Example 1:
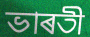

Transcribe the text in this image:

ভাৰতী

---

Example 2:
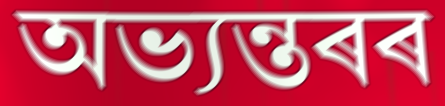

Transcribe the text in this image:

অভ্যন্তৰৰ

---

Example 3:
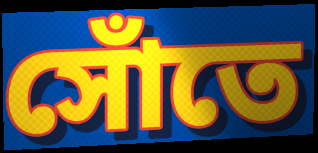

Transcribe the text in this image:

সোঁতে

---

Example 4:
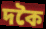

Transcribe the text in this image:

দকৈ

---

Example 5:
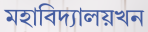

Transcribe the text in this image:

মহাবিদ্যালয়খন